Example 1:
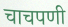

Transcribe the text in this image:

चाचपणी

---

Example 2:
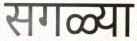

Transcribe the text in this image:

सगळ्या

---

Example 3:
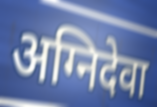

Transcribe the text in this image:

अग्निदेवा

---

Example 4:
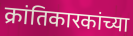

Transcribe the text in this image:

क्रांतिकारकांच्या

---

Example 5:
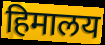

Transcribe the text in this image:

हिमालय